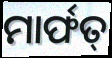
ମାର୍ଫତ୍